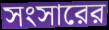
সংসারের